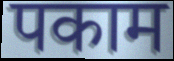
पकाम